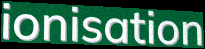
ionisation